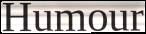
Humour